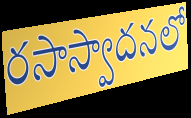
రసాస్వాదనలో